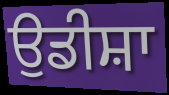
ਉਡੀਸ਼ਾ